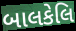
બાલકેલિ